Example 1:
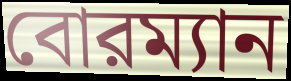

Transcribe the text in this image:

বোরম্যান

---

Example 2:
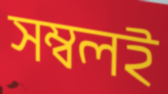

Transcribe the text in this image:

সম্বলই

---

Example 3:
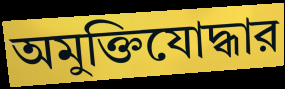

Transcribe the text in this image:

অমুক্তিযোদ্ধার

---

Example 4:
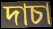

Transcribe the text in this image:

দাচা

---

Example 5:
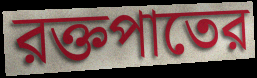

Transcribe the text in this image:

রক্তপাতের